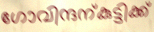
ഗോവിന്ദന്കുട്ടിക്ക്